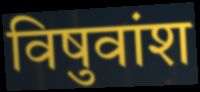
विषुवांश